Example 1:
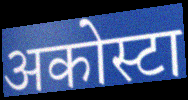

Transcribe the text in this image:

अकोस्टा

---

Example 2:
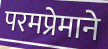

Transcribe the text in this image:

परमप्रेमाने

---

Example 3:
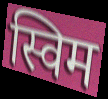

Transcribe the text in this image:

स्विम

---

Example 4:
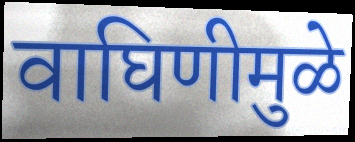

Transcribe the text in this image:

वाघिणीमुळे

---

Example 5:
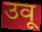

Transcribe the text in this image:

उवू